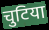
चुटिया